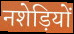
नशेड़ियों